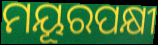
ମୟୂରପକ୍ଷୀ